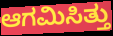
ಆಗಮಿಸಿತ್ತು